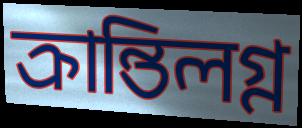
ক্রান্তিলগ্ন